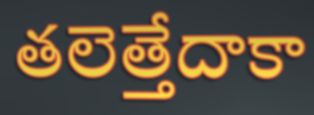
తలెత్తేదాకా